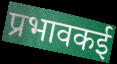
प्रभावकई